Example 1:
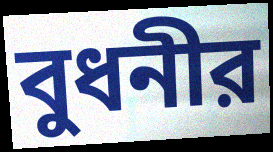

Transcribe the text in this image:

বুধনীর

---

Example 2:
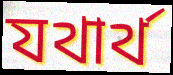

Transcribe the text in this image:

যথার্থ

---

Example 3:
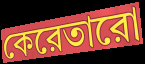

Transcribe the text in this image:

কেরেতারো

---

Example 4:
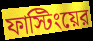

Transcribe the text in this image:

ফাস্টিংয়ের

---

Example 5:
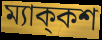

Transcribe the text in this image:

ম্যাক্‌কশ